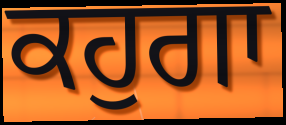
ਕਹੁਗਾ